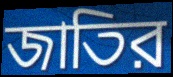
জাতির